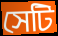
সেটি